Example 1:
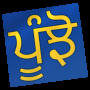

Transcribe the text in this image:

ਪੂੰਝੋ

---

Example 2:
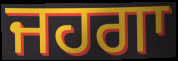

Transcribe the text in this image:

ਜਹਗਾ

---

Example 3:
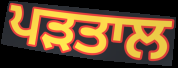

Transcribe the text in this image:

ਪੜਤਾਲ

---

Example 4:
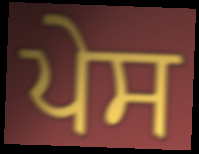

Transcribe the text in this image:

ਪੇਸ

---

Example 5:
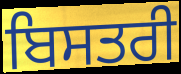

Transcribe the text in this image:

ਬਿਸਤਰੀ